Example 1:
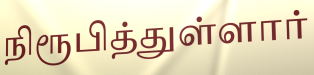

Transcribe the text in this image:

நிரூபித்துள்ளார்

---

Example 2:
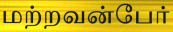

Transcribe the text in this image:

மற்றவன்பேர்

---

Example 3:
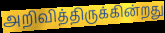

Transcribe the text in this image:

அறிவித்திருக்கின்றது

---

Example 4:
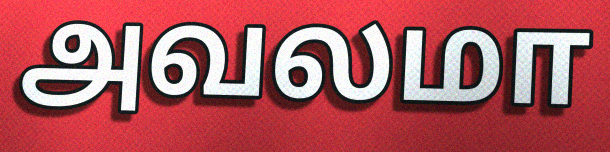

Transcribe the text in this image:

அவலமா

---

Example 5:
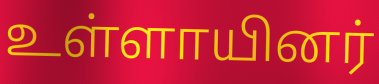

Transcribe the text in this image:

உள்ளாயினர்